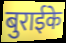
बुराईके